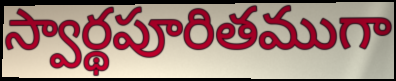
స్వార్థపూరితముగా